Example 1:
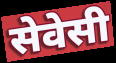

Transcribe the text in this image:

सेवेसी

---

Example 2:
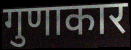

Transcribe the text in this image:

गुणाकार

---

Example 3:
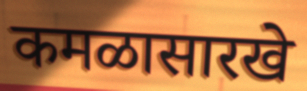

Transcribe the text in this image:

कमळासारखे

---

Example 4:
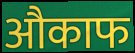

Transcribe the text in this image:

औकाफ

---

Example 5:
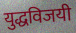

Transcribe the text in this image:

युद्धविजयी